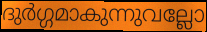
ദുർഗ്ഗമാകുന്നുവല്ലോ